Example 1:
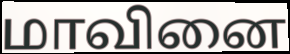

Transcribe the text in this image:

மாவினை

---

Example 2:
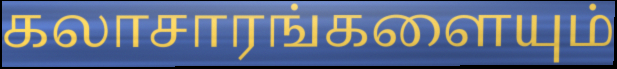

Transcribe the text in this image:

கலாசாரங்களையும்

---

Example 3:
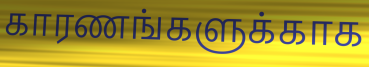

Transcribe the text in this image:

காரணங்களுக்காக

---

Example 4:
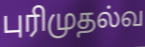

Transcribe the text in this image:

புரிமுதல்வ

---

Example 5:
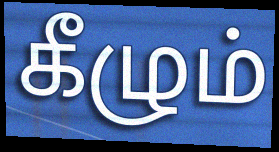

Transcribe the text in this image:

கீழும்